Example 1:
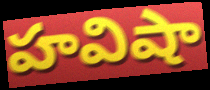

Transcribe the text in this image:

హవిషా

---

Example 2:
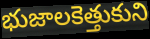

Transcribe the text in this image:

భుజాలకెత్తుకుని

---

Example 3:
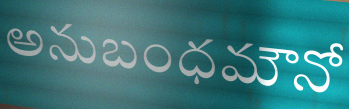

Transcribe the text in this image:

అనుబంధమౌనో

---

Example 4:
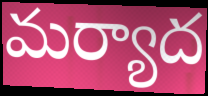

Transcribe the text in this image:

మర్యాద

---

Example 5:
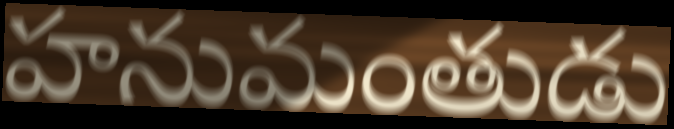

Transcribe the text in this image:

హనుమంతుడు